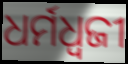
ଧର୍ମଧ୍ୱଜୀ